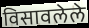
विसावलेले